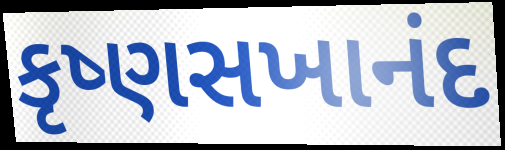
કૃષ્ણસખાનંદ